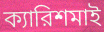
ক্যারিশমাই